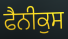
ਫੈਨੀਕੁਸ